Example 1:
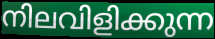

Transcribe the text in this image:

നിലവിളിക്കുന്ന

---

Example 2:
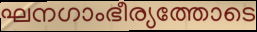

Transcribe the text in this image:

ഘനഗാംഭീര്യത്തോടെ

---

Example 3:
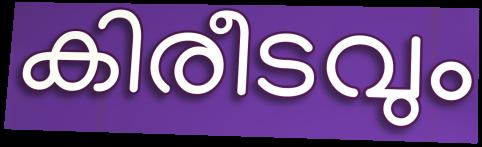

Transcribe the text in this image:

കിരീടവും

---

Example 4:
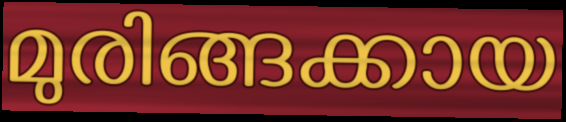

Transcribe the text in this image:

മുരിങ്ങക്കായ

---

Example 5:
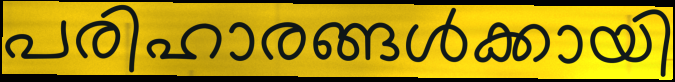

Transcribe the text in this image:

പരിഹാരങ്ങൾക്കായി